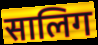
सालिग